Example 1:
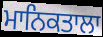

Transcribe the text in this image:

ਮਾਨਿਕਤਾਲਾ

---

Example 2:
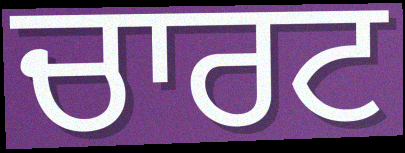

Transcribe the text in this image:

ਚਾਰਟ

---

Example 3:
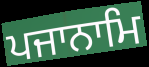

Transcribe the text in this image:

ਪਜਾਨਾਮਿ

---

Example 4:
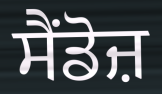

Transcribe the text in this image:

ਸੈਂਡੋਜ਼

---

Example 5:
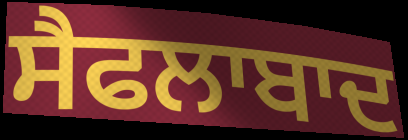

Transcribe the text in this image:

ਸੈਫਲਾਬਾਦ